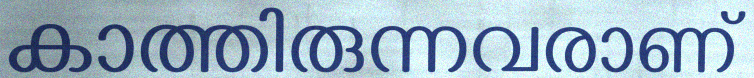
കാത്തിരുന്നവരാണ്